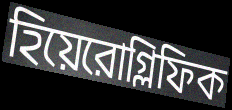
হিয়েরোগ্লিফিক